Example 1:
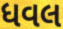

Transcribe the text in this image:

ધવલ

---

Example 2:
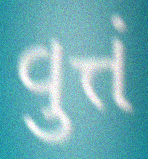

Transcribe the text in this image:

વુત્તં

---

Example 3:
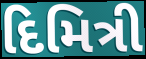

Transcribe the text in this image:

દિમિત્રી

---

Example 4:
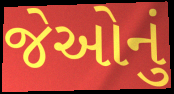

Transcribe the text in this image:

જેઓનું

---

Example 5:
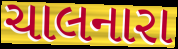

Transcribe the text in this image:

ચાલનારા